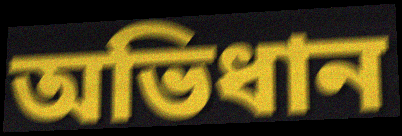
অভিধান